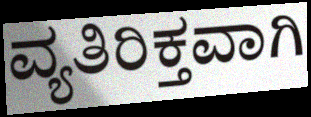
ವ್ಯತಿರಿಕ್ತವಾಗಿ